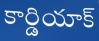
కార్డియాక్